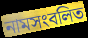
নামসংবলিত